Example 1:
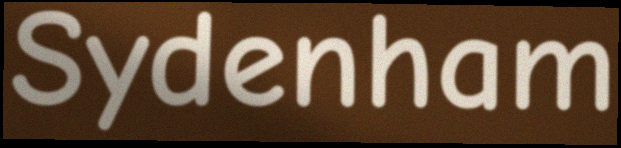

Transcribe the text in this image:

Sydenham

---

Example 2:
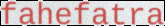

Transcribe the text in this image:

fahefatra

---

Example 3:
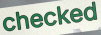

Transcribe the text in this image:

checked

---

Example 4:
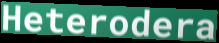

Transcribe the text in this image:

Heterodera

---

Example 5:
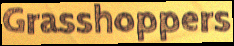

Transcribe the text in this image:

Grasshoppers